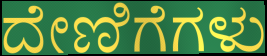
ದೇಣಿಗೆಗಳು